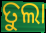
ତୁଲା